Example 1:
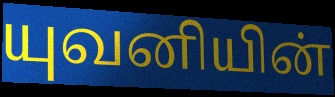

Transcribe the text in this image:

யுவனியின்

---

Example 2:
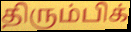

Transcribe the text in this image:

திரும்பிக்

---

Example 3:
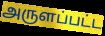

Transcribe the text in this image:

அருளப்பட்ட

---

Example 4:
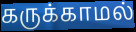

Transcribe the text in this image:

கருக்காமல்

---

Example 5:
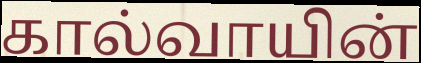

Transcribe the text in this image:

கால்வாயின்